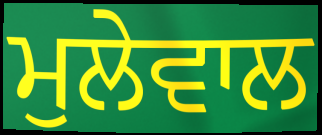
ਮੁਲੇਵਾਲ